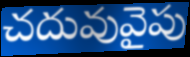
చదువువైపు